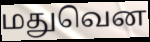
மதுவென